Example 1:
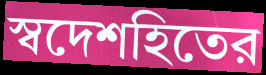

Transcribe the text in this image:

স্বদেশহিতের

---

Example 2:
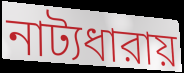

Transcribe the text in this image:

নাট্যধারায়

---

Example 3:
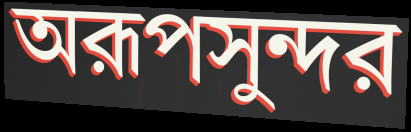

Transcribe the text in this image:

অরূপসুন্দর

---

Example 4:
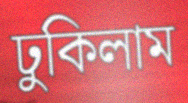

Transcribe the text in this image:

ঢুকিলাম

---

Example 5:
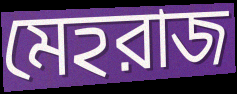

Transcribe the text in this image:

মেহরাজ